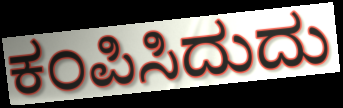
ಕಂಪಿಸಿದುದು